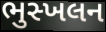
ભુસ્ખલન